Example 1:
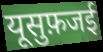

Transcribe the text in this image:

यूसुफ़जई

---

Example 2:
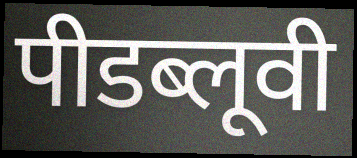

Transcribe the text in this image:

पीडब्लूवी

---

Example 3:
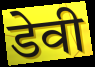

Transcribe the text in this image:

डेवी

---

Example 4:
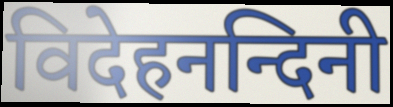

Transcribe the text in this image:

विदेहनन्दिनी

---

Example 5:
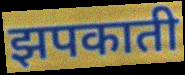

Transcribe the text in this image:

झपकाती